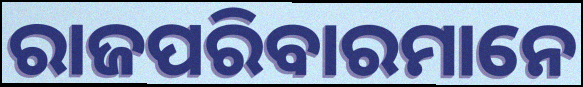
ରାଜପରିବାରମାନେ